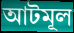
আটমূল